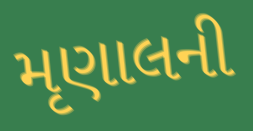
મૃણાલની